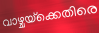
വാഴ്ചയ്‌ക്കെതിരെ